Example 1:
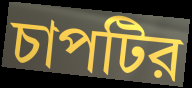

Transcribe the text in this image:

চাপটির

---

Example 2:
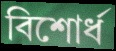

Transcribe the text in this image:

বিশোর্ধ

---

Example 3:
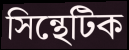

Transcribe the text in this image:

সিন্থেটিক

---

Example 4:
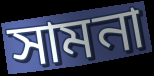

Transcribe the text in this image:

সামনা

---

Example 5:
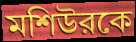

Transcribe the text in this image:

মশিউরকে